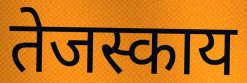
तेजस्काय